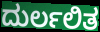
ದುರ್ಲಲಿತ